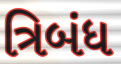
ત્રિબંધ